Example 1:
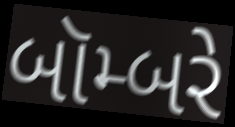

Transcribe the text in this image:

બૉમ્બરે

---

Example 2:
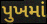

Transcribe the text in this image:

પુખમાં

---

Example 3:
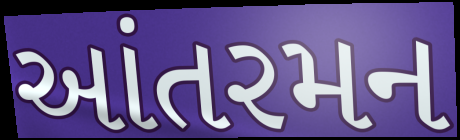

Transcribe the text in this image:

આંતરમન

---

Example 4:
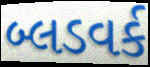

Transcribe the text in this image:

બ્લડવર્ક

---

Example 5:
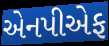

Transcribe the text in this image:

એનપીએફ